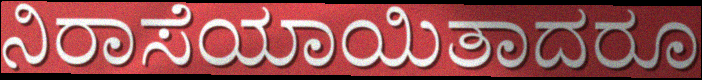
ನಿರಾಸೆಯಾಯಿತಾದರೂ